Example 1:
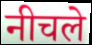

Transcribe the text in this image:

नीचले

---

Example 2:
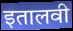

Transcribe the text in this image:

इतालवी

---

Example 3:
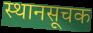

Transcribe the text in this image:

स्थानसूचक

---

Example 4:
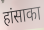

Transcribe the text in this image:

हांसाका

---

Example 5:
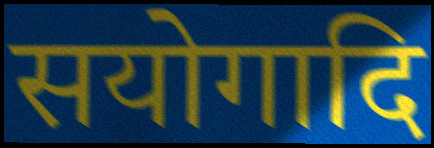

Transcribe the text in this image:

सयोगादि